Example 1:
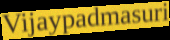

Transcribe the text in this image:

Vijaypadmasuri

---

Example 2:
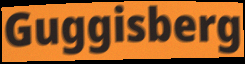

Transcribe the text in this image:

Guggisberg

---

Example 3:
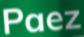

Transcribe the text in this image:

Paez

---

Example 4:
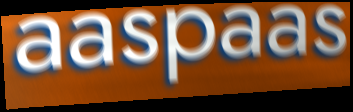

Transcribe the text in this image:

aaspaas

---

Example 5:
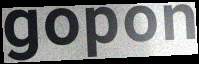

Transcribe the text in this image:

gopon